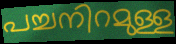
പച്ചനിറമുള്ള